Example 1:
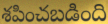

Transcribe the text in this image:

శపించబడింది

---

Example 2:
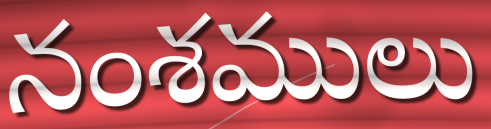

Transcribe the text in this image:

నంశములు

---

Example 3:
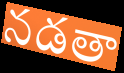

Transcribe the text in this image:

నడతా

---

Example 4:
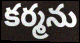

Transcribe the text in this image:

కర్మను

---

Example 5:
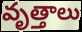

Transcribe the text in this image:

వృత్తాలు